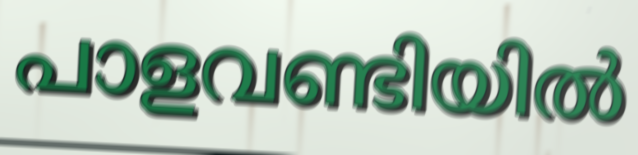
പാളവണ്ടിയിൽ